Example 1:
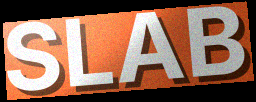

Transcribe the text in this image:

SLAB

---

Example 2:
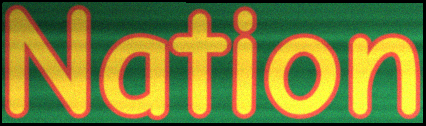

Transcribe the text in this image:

Nation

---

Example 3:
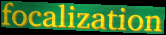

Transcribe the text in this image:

focalization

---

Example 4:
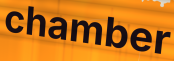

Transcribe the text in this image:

chamber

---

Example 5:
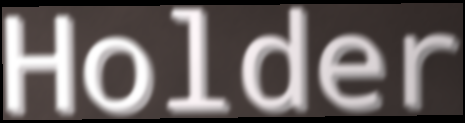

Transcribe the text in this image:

Holder